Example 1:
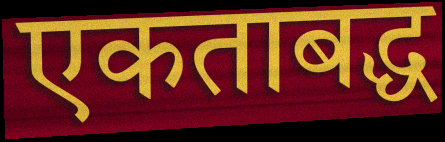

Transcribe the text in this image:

एकताबद्ध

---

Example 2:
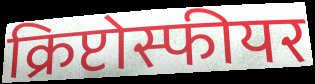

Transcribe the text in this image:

क्रिप्टोस्फीयर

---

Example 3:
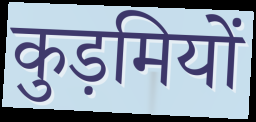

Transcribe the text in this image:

कुड़मियों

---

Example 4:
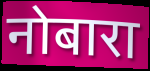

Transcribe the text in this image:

नोबारा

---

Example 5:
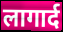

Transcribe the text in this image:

लागार्द